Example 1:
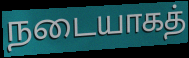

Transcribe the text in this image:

நடையாகத்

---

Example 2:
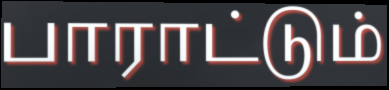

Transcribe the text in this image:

பாராட்டும்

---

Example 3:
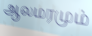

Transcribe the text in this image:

ஆலமரமும்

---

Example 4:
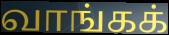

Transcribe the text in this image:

வாங்கக்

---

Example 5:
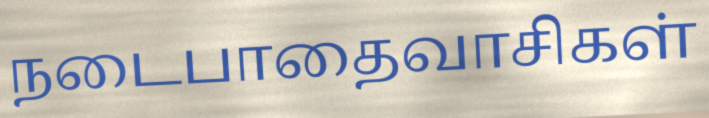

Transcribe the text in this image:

நடைபாதைவாசிகள்